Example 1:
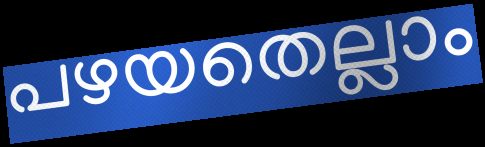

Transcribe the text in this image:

പഴയതെല്ലാം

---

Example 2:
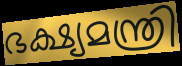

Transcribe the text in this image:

ഭക്ഷ്യമന്ത്രി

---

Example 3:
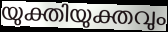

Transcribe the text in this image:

യുക്തിയുക്തവും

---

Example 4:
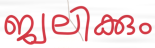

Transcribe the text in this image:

ജ്വലിക്കും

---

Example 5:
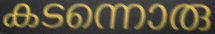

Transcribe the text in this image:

കടന്നൊരു